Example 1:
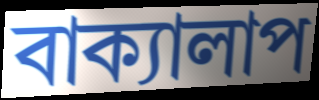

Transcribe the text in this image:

বাক্যালাপ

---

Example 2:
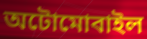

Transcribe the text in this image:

অটোমোবাইল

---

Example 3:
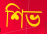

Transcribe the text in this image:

শিভ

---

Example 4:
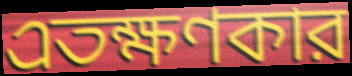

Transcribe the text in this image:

এতক্ষণকার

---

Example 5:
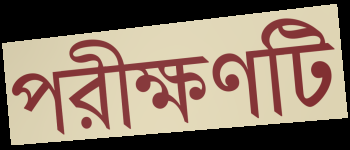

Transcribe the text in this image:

পরীক্ষণটি